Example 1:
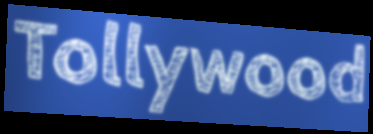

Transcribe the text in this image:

Tollywood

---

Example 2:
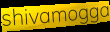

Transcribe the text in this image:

shivamogga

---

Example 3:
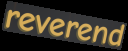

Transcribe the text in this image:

reverend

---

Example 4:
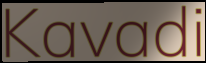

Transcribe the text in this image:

Kavadi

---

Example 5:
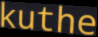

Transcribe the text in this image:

kuthe